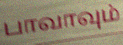
பாவாவும்